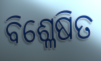
ବିଶ୍ଳେଷିତ